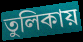
তুলিকায়